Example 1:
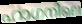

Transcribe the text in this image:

ഹാഗനിലെ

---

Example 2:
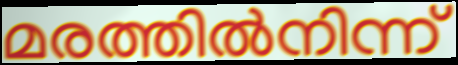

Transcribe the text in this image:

മരത്തിൽനിന്ന്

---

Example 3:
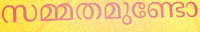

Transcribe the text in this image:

സമ്മതമുണ്ടോ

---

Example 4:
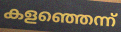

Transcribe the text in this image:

കളഞ്ഞെന്ന്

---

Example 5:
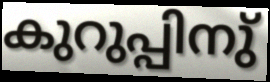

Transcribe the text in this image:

കുറുപ്പിനു്